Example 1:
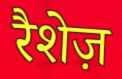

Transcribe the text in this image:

रैशेज़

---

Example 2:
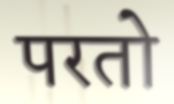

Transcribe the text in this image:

परतो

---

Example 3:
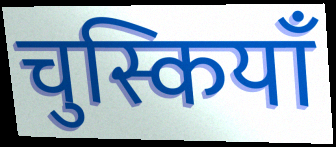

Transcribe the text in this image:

चुस्कियाँ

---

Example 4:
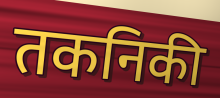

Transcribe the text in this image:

तकनिकी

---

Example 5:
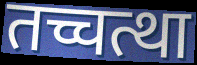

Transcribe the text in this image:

तच्चत्था